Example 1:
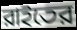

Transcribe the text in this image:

রাইতের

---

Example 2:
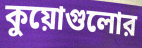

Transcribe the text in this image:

কুয়োগুলোর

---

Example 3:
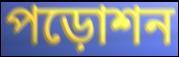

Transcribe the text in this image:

পড়োশন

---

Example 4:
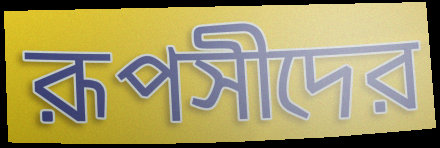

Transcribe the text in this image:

রূপসীদের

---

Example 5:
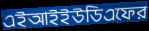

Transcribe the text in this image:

এইআইইউডিএফের